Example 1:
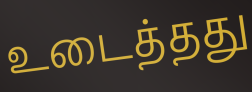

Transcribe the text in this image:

உடைத்தது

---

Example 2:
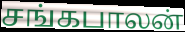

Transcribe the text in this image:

சங்கபாலன்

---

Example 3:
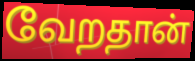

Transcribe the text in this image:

வேறதான்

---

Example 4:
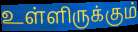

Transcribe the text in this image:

உள்ளிருக்கும்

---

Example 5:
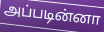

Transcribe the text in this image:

அப்படின்னா